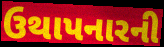
ઉથાપનારની